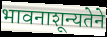
भावनाशून्यतेने